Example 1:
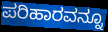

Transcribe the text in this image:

ಪರಿಹಾರವನ್ನೂ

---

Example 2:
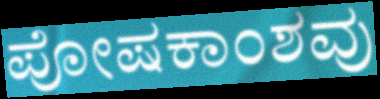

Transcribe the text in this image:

ಪೋಷಕಾಂಶವು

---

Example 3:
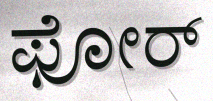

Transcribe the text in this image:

ಫೋರ್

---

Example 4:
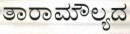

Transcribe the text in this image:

ತಾರಾಮೌಲ್ಯದ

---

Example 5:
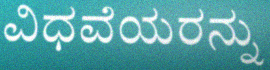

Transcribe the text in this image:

ವಿಧವೆಯರನ್ನು